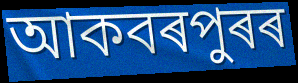
আকবৰপুৰৰ